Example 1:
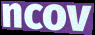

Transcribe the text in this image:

ncov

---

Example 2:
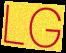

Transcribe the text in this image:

LG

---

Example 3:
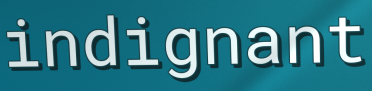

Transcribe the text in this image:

indignant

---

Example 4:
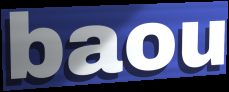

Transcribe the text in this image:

baou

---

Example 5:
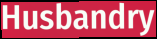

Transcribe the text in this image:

Husbandry